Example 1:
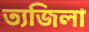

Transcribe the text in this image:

ত্যজিলা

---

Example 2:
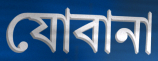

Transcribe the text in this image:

যোবানা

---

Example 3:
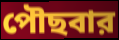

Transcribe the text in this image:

পৌছবার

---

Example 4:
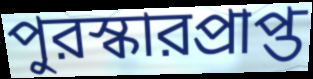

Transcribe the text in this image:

পুরস্কারপ্রাপ্ত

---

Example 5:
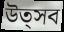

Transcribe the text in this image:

উত্সব